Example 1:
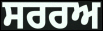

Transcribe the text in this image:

ਸਰਰਅ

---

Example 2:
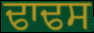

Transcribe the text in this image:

ਢਾਢਸ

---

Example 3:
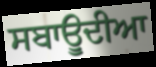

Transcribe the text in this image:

ਸਬਾਊਦੀਆ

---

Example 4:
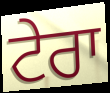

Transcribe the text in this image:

ਟੇਰਾ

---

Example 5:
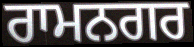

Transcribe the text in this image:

ਰਾਮਨਗਰ